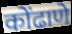
कोंढाणे